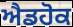
ਐਡਹੋਕ